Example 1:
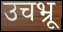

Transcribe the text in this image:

उचभ्रू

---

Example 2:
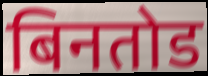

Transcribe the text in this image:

बिनतोड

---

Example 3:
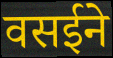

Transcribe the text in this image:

वसईने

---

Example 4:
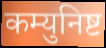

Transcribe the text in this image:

कम्युनिष्ट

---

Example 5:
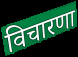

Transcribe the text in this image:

विचारणा